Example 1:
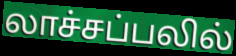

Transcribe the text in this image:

லாச்சப்பலில்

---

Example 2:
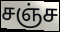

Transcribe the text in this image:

சஞ்ச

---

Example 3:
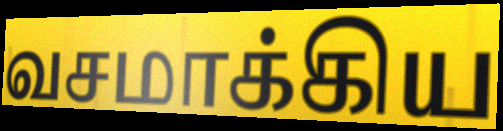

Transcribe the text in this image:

வசமாக்கிய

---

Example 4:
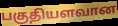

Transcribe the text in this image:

பகுதியளவான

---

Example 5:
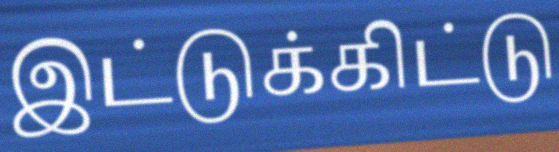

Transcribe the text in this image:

இட்டுக்கிட்டு